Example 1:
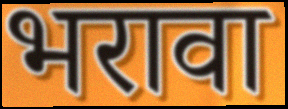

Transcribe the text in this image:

भरावा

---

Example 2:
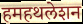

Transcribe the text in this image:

हमहथलेशन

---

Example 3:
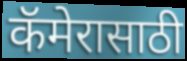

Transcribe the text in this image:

कॅमेरासाठी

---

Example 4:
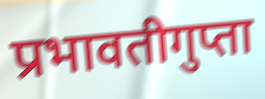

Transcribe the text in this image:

प्रभावतीगुप्ता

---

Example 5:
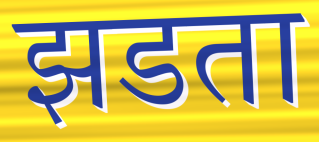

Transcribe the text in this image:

झडता